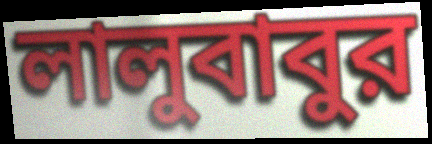
লালুবাবুর